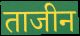
ताजीन